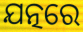
ଯତ୍ନରେ